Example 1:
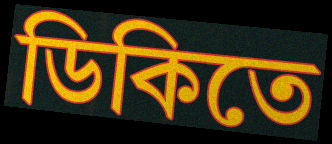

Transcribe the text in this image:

ডিকিতে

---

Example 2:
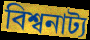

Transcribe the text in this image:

বিশ্বনাট্য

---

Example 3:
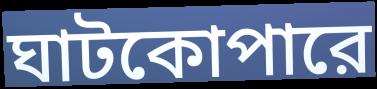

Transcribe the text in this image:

ঘাটকোপারে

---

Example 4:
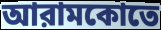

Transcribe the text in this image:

আরামকোতে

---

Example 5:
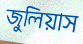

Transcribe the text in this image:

জুলিয়াস